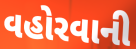
વહોરવાની